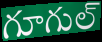
గూగుల్